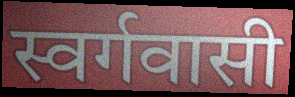
स्वर्गवासी